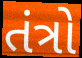
તંત્રો